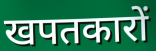
खपतकारों